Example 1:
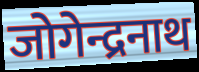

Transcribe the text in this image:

जोगेन्द्रनाथ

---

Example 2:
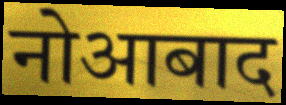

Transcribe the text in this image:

नोआबाद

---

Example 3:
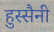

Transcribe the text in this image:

हुस्सैनी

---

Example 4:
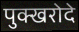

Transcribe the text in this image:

पुक्खरोदे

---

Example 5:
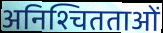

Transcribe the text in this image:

अनिश्चितताओं